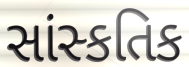
સાંસ્કતિક